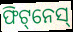
ଫିଟ୍‌ନେସ୍